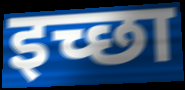
इच्छा